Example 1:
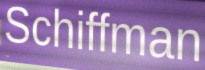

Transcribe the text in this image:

Schiffman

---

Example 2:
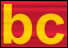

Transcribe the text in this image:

bc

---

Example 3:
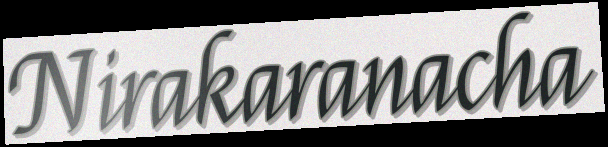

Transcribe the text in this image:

Nirakaranacha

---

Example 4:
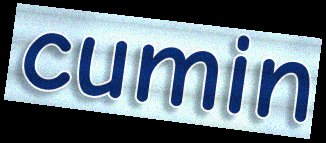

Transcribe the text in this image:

cumin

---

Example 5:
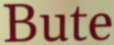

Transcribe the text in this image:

Bute